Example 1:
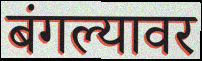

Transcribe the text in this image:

बंगल्यावर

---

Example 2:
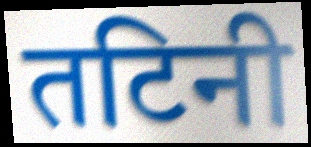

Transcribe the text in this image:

तटिनी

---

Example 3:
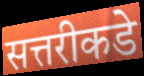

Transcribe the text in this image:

सत्तरीकडे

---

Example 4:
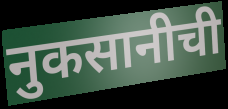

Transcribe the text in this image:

नुकसानीची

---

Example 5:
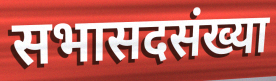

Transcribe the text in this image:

सभासदसंख्या